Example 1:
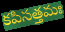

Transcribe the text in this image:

కపిసత్తమః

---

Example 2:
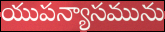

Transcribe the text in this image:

యుపన్యాసమును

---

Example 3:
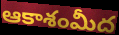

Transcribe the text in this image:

ఆకాశంమీద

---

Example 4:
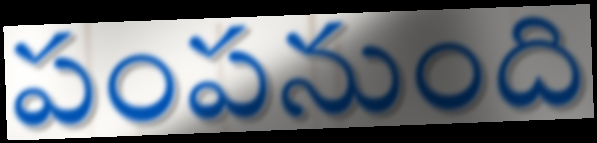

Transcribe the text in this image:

పంపనుంది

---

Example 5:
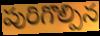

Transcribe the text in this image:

పురిగొల్పిన